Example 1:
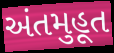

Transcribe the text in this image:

અંતમુહૂત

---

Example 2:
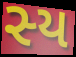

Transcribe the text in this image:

સ્ય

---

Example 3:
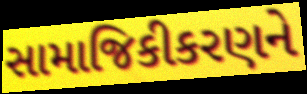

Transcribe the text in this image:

સામાજિકીકરણને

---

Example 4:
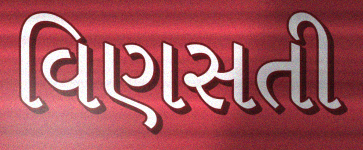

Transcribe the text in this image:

વિણસતી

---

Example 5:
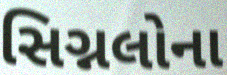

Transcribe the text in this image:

સિગ્નલોના